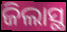
ଜିଲାସ୍ଥ